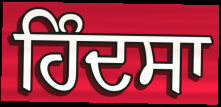
ਹਿੰਦਸਾ